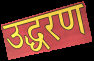
उद्धरण